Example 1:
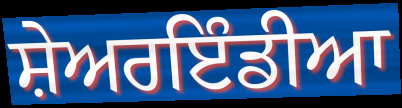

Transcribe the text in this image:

ਸ਼ੇਅਰਇੰਡੀਆ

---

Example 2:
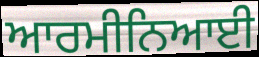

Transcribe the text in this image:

ਆਰਮੀਨਿਆਈ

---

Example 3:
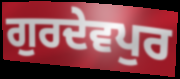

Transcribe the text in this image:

ਗੁਰਦੇਵਪੁਰ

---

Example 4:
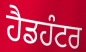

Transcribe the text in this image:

ਹੈਡਹੰਟਰ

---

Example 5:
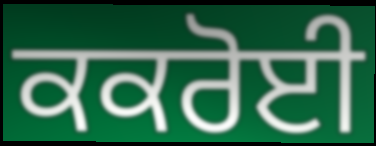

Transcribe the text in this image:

ਕਕਰੋਈ